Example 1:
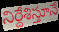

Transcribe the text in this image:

నిర్దేశిస్తూనే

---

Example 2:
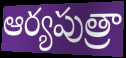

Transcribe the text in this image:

ఆర్యపుత్రా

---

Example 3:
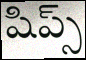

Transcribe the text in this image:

షిప్స్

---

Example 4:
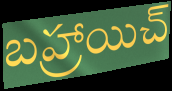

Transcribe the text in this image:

బహ్రాయిచ్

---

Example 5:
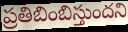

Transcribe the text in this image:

ప్రతిబింబిస్తుందని